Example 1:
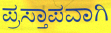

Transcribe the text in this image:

ಪ್ರಸ್ತಾಪವಾಗಿ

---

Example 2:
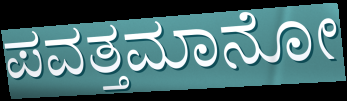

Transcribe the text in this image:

ಪವತ್ತಮಾನೋ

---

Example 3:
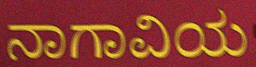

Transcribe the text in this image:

ನಾಗಾವಿಯ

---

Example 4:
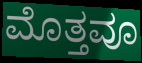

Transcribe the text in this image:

ಮೊತ್ತವೂ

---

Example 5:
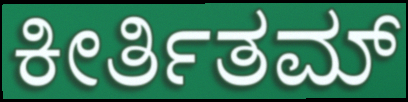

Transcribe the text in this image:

ಕೀರ್ತಿತಮ್